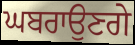
ਘਬਰਾਉਣਗੇ